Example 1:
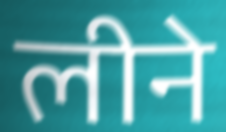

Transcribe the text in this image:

लीने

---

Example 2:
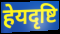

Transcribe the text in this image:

हेयदृष्टि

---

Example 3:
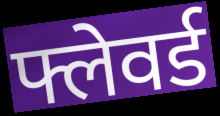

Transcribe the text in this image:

फ्लेवर्ड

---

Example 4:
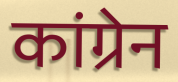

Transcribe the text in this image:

कांग्रेन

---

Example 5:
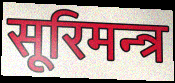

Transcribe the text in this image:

सूरिमन्त्र